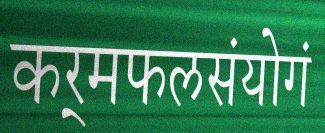
कर्मफलसंयोगं